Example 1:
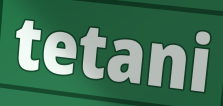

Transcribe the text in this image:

tetani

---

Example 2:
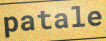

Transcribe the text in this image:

patale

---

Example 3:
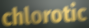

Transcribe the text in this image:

chlorotic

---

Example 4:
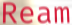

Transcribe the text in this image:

Ream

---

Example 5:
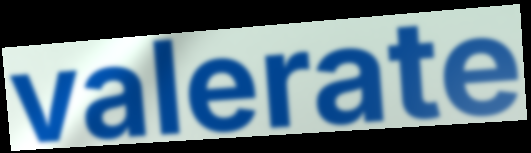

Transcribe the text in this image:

valerate